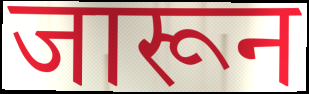
जारून